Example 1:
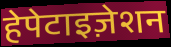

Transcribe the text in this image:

हेपेटाइज़ेशन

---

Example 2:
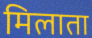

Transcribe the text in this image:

मिलाता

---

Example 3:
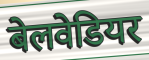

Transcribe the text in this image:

बेलवेडियर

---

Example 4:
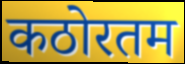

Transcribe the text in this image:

कठोरतम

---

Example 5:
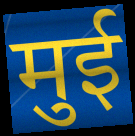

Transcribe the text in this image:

मुई